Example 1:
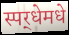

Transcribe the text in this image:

स्पर्धेमधे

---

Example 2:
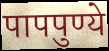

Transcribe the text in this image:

पापपुण्ये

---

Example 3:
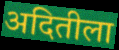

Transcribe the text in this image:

अदितीला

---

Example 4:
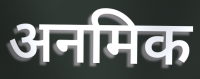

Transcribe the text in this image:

अनमिक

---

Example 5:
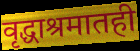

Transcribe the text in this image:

वृद्धाश्रमातही